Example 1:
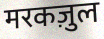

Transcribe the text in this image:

मरकज़ुल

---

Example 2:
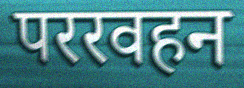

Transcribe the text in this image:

पररवहन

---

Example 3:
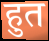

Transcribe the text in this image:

हुत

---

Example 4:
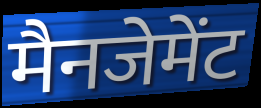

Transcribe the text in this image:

मैनजेमेंट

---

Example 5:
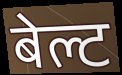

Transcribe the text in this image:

बेल्‍ट